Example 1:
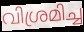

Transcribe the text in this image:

വിശ്രമിച്ച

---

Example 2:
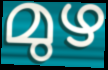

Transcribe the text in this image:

മുഴ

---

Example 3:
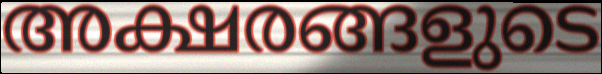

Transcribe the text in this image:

അക്ഷരങ്ങളുടെ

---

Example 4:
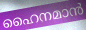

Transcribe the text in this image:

ഹൈനമാൻ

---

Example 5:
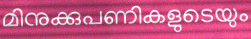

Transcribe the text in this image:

മിനുക്കുപണികളുടെയും